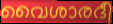
വൈശാരദീ